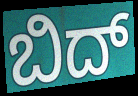
ಬಿದ್